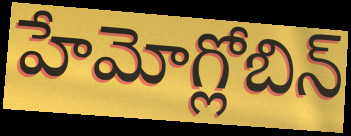
హేమోగ్లోబిన్